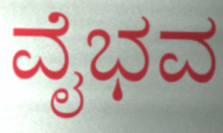
ವೈಭವ